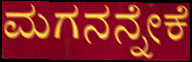
ಮಗನನ್ನೇಕೆ